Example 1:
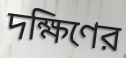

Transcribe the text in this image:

দক্ষিণের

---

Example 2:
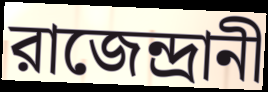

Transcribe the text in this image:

রাজেন্দ্রানী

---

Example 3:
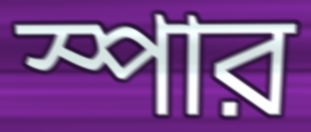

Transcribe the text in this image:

স্পার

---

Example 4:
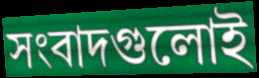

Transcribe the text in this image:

সংবাদগুলোই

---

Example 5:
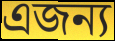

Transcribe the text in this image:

এজন্য